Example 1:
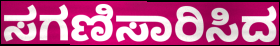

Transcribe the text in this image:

ಸಗಣಿಸಾರಿಸಿದ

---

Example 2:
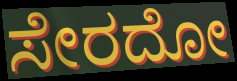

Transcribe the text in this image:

ಸೇರದೋ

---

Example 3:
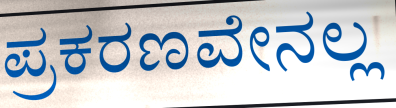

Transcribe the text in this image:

ಪ್ರಕರಣವೇನಲ್ಲ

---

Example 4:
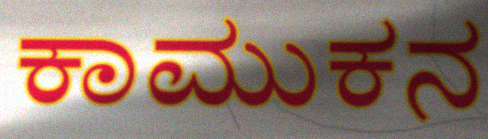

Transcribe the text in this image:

ಕಾಮುಕನ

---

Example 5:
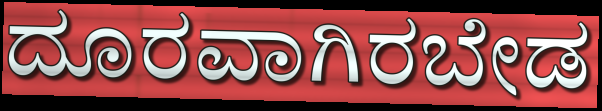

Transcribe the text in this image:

ದೂರವಾಗಿರಬೇಡ